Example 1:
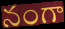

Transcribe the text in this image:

నంగా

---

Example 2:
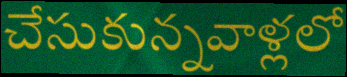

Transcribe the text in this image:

చేసుకున్నవాళ్లలో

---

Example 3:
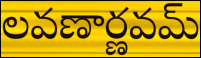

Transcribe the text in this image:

లవణార్ణవమ్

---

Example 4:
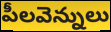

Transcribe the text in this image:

పీలవెన్నులు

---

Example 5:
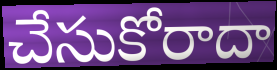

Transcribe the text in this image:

చేసుకోరాదా